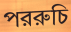
পররুচি